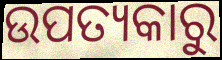
ଉପତ୍ୟକାରୁ